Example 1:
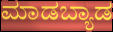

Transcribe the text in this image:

ಮಾಡಬ್ಯಾಡ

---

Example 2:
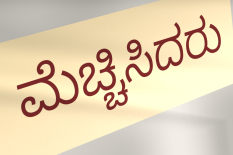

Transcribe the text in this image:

ಮೆಚ್ಚಿಸಿದರು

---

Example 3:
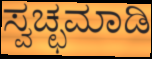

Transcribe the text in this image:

ಸ್ವಚ್ಛಮಾಡಿ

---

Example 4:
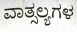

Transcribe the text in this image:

ವಾತ್ಸಲ್ಯಗಳ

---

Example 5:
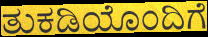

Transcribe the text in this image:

ತುಕಡಿಯೊಂದಿಗೆ